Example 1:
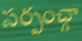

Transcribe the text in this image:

సర్పంచ్గా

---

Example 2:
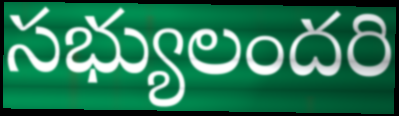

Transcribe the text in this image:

సభ్యులందరి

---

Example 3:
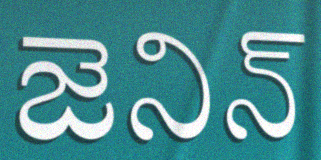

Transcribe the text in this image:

జెనిన్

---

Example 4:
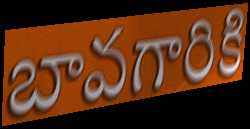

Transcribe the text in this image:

బావగారికి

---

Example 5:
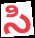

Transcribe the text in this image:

సి